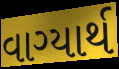
વાગ્યાર્થ